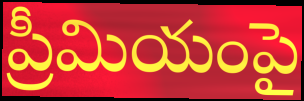
ప్రీమియంపై